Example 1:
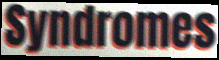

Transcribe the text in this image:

Syndromes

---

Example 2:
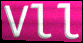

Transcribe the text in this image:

Vll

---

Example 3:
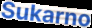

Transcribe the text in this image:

Sukarno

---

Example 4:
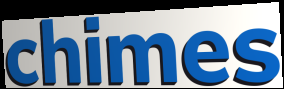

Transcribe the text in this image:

chimes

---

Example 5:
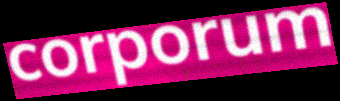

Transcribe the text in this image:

corporum